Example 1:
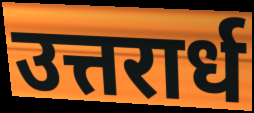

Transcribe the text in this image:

उत्तरार्ध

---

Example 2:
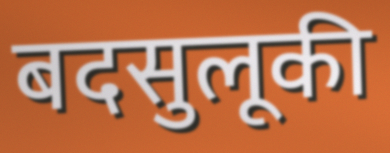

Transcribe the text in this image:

बदसुलूकी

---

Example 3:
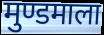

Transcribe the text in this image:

मुण्डमाला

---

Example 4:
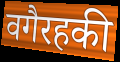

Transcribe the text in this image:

वगैरहकी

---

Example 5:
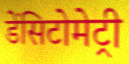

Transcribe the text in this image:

डेंसिटोमेट्री